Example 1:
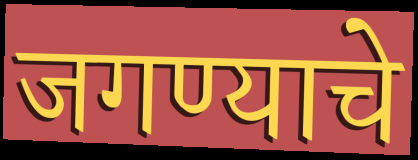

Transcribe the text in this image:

जगण्याचे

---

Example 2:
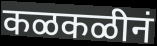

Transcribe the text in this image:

कळकळीनं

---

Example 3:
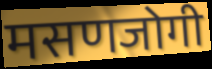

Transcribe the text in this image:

मसणजोगी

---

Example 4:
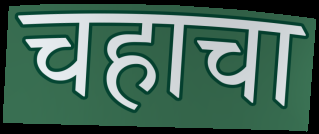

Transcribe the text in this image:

चहाचा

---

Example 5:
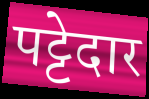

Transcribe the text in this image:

पट्टेदार